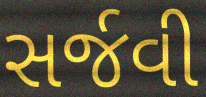
સર્જવી